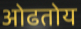
ओढतोय